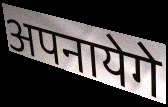
अपनायेगे